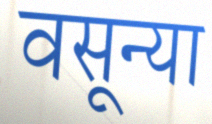
वसून्या